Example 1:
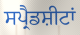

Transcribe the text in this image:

ਸਪ੍ਰੈਡਸ਼ੀਟਾਂ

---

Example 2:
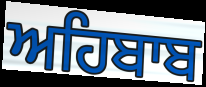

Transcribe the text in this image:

ਅਹਿਬਾਬ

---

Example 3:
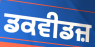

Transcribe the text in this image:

ਡਕਵੀਡਜ਼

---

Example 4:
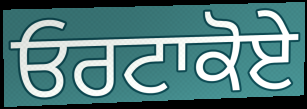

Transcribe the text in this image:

ਓਰਟਾਕੋਏ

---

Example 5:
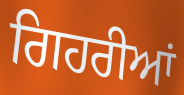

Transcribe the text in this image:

ਗਿਹਰੀਆਂ